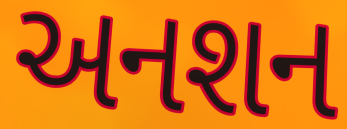
અનશન